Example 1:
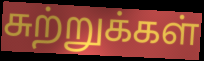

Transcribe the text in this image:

சுற்றுக்கள்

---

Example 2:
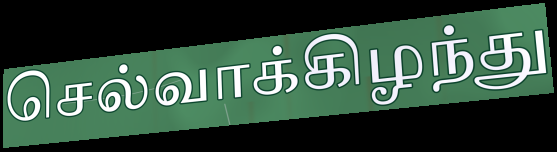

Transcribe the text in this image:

செல்வாக்கிழந்து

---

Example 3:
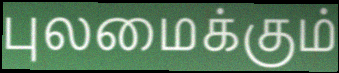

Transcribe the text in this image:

புலமைக்கும்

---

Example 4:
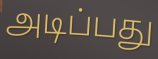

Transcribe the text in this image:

அடிப்பது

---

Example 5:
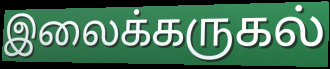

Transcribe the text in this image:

இலைக்கருகல்